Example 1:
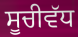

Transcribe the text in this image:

ਸੂਚੀਵੱਧ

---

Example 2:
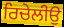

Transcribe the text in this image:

ਰਿਚੇਲੀਉ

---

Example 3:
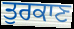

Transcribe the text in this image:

ਤੁਰਕਾਣ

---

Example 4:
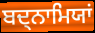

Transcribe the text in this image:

ਬਦ੍ਨਾਮਿਯਾਂ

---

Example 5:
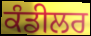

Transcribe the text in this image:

ਕੰਡੀਲਰ